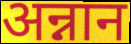
अन्नान